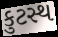
કુટસ્થ